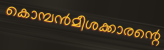
കൊമ്പൻമീശക്കാരന്റെ